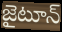
జైటూన్